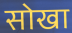
सोखा